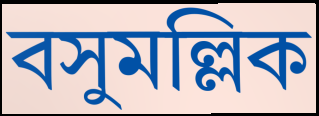
বসুমল্লিক